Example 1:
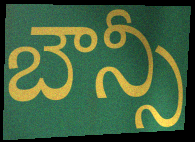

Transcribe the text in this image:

బౌన్సీ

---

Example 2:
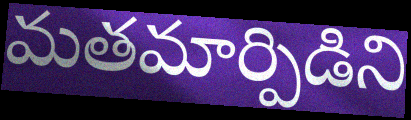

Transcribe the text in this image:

మతమార్పిడిని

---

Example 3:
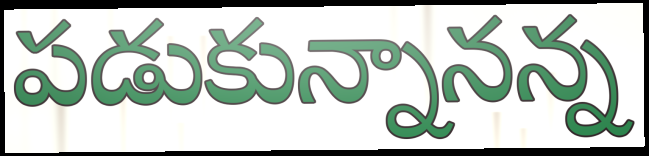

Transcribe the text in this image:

పడుకున్నానన్న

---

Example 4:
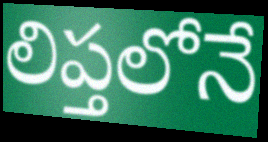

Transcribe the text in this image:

లిప్తలోనే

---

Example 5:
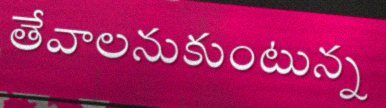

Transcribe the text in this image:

తేవాలనుకుంటున్న